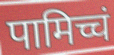
पामिच्चं